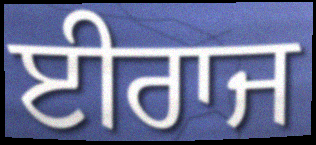
ਈਰਾਜ